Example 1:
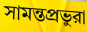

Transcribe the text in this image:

সামন্তপ্রভুরা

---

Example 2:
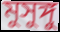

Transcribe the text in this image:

মুসুঙ্গু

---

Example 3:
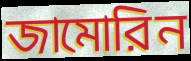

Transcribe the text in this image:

জামোরিন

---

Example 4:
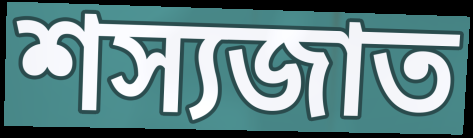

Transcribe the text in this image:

শস্যজাত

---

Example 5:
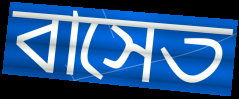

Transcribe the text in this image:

বাসেত